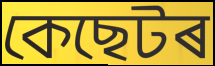
কেছেটৰ